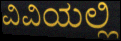
ವಿವಿಯಲ್ಲಿ